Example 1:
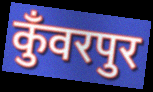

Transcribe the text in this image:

कुँवरपुर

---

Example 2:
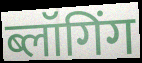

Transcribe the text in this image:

ब्‍लॉगिंग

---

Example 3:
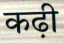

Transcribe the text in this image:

कढ़ी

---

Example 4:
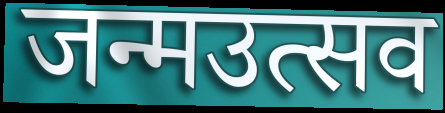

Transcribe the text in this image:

जन्मउत्सव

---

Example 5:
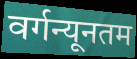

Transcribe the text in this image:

वर्गन्यूनतम